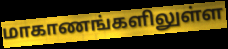
மாகாணங்களிலுள்ள